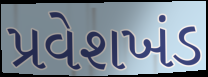
પ્રવેશખંડ